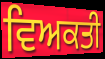
ਵਿਅਕਤੀ